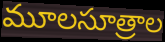
మూలసూత్రాల